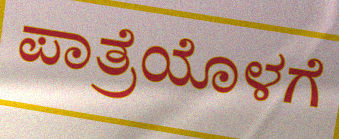
ಪಾತ್ರೆಯೊಳಗೆ